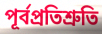
পূর্বপ্রতিশ্রুতি